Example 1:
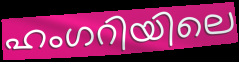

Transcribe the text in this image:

ഹംഗറിയിലെ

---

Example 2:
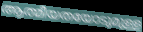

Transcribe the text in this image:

ആത്മീയതയോടുമുള്ള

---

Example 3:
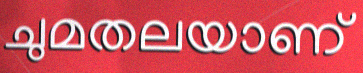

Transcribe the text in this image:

ചുമതലയാണ്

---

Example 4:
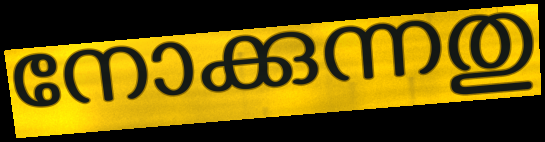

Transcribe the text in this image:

നോക്കുന്നതു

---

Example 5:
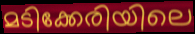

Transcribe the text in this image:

മടിക്കേരിയിലെ